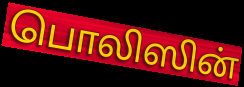
பொலிஸின்